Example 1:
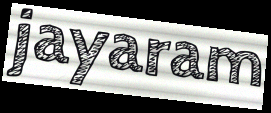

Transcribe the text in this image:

jayaram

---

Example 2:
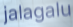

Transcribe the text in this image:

jalagalu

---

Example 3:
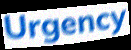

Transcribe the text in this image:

Urgency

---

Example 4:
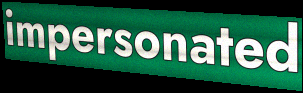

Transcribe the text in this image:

impersonated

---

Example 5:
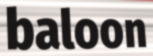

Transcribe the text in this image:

baloon